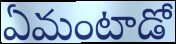
ఏమంటాడో